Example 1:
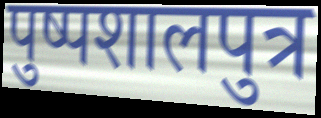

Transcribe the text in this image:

पुष्पशालपुत्र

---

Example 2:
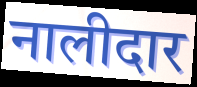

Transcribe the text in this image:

नालीदार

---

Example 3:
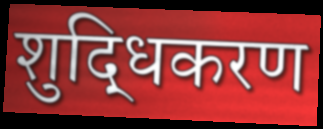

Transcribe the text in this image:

शुद्धिकरण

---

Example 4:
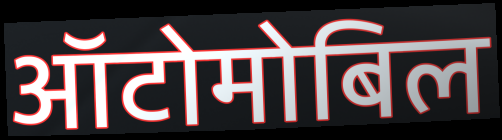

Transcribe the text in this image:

ऑटोमोबिल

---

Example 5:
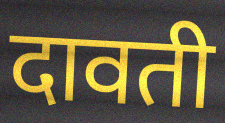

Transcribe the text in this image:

दावती